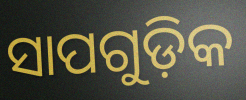
ସାପଗୁଡ଼ିକ